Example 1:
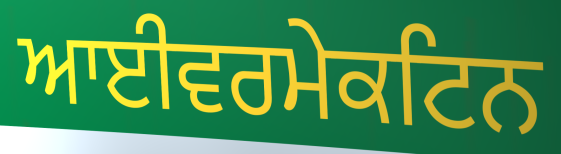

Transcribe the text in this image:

ਆਈਵਰਮੇਕਟਿਨ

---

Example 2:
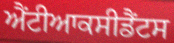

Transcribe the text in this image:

ਐਂਟੀਆਕਸੀਡੈਂਟਸ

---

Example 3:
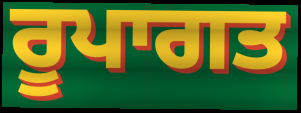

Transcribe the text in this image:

ਰੂਪਾਗਤ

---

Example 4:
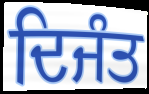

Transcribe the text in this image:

ਦਿਜੰਤ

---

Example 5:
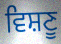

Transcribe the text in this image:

ਵਿਸ਼ਣੂ